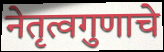
नेतृत्वगुणाचे